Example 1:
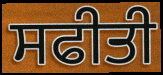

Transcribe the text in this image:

ਸਫੀਤੀ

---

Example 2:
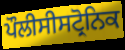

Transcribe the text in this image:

ਪੌਲੀਸੀਸਟ੍ਰੋਨਿਕ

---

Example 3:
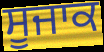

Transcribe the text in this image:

ਸੂਜਾਕ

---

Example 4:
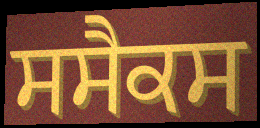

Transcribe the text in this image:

ਸਸੈਕਸ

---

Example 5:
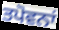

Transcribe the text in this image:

ਤਪੋਵਨਾਂ